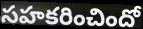
సహకరించిందో